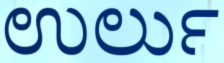
ಉರ್ಲು